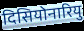
दिसियोनारियु